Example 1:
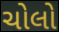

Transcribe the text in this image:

ચોલો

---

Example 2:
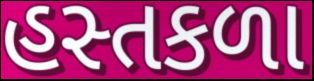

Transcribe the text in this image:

હસ્તકળા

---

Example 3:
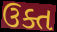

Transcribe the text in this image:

ઉક્ત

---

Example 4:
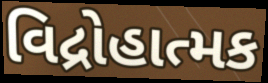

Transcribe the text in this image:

વિદ્રોહાત્મક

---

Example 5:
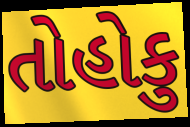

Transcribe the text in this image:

તોહોકુ